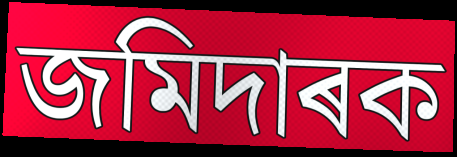
জমিদাৰক